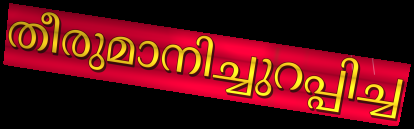
തീരുമാനിച്ചുറപ്പിച്ച